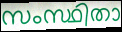
സംസ്ഥിതാ